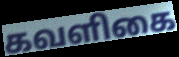
கவளிகை